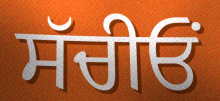
ਸੱਚੀਓਂ